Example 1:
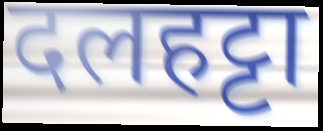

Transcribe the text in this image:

दलहट्टा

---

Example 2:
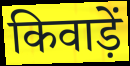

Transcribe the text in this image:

किवाड़ें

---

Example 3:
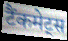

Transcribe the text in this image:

टैंकमेट्स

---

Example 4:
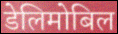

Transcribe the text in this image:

डेलिमोबिल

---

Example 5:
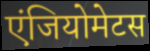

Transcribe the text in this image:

एंजियोमेटस